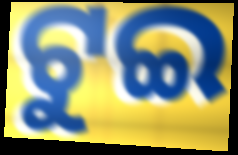
ଟୁଇ